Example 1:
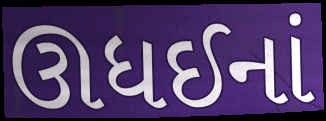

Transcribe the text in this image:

ઊધઈનાં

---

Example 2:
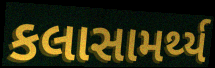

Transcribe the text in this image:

કલાસામર્થ્ય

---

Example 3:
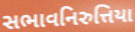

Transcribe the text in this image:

સભાવનિરુત્તિયા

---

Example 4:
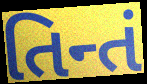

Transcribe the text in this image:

તિન્તં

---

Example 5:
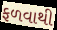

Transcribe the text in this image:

ફળવાથી